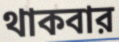
থাকবার